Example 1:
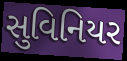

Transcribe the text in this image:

સુવિનિયર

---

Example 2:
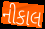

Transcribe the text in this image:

નીકાલ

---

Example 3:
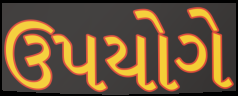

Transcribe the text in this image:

ઉપયોગે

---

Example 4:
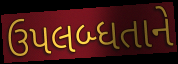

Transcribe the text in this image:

ઉપલબ્ધતાને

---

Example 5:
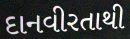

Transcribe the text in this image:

દાનવીરતાથી